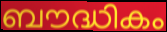
ബൗദ്ധികം